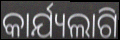
କାର୍ଯ୍ୟଲାଗି